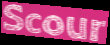
Scour